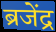
ब्रजेंद्र